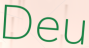
Deu